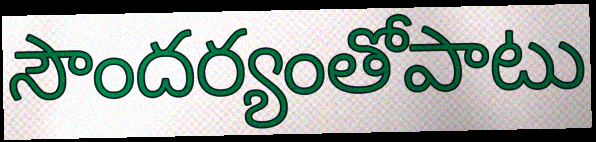
సౌందర్యంతోపాటు